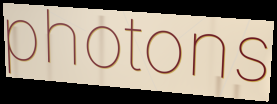
photons